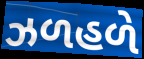
ઝળહળે